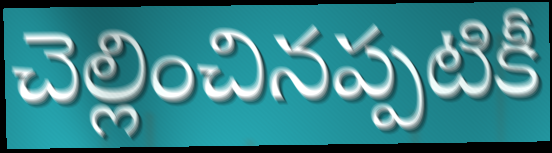
చెల్లించినప్పటికీ